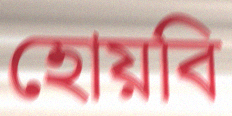
হোয়বি